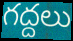
గద్దలు